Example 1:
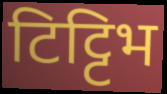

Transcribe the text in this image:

टिट्टिभ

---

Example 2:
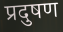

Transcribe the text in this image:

प्रदुषण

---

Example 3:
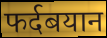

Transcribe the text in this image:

फर्दबयान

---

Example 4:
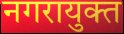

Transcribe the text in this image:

नगरायुक्त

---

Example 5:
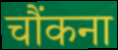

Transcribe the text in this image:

चौंकना